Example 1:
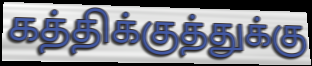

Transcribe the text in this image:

கத்திக்குத்துக்கு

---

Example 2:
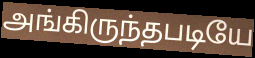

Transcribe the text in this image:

அங்கிருந்தபடியே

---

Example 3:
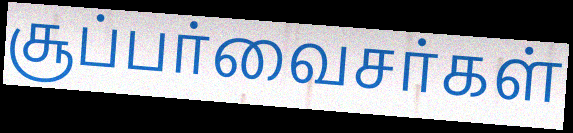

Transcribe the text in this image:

சூப்பர்வைசர்கள்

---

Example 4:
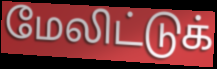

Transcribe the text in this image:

மேலிட்டுக்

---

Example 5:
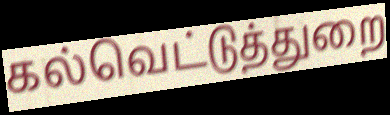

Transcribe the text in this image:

கல்வெட்டுத்துறை